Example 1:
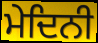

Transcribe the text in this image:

ਮੇਦਿਨੀ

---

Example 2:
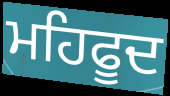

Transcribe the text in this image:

ਮਹਿਫੂਦ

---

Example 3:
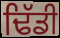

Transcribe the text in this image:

ਢਿੱਡੀ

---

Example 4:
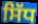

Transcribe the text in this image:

ਸਿੱਧ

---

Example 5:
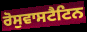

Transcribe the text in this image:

ਰੋਸੁਵਾਸਟੈਟਿਨ